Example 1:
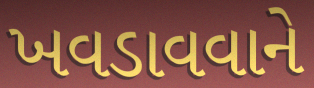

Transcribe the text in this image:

ખવડાવવાને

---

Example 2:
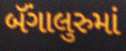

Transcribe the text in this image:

બૅંગાલુરુમાં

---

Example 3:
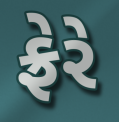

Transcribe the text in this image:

ફ્રેરે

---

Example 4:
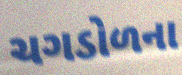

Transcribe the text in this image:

ચગડોળના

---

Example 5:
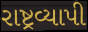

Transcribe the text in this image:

રાષ્ટ્રવ્યાપી